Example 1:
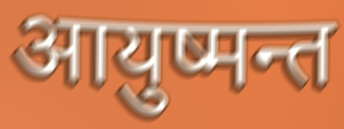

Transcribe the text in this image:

आयुष्मन्त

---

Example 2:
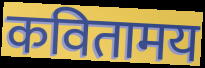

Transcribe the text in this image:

कवितामय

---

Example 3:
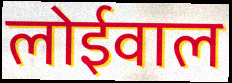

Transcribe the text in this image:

लोईवाल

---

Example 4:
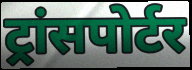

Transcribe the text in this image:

ट्रांसपोर्टर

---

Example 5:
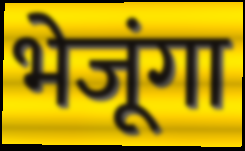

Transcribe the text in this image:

भेजूंगा